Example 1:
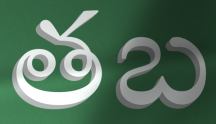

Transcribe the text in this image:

తబ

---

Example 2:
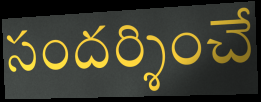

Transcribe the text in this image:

సందర్శించే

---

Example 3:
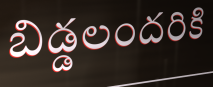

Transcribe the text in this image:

బిడ్డలందరికి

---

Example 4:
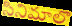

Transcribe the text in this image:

సినిమాలొ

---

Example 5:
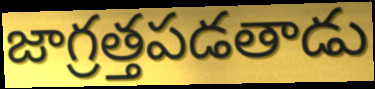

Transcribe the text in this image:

జాగ్రత్తపడతాడు